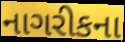
નાગરીકના